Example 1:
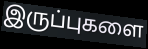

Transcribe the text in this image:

இருப்புகளை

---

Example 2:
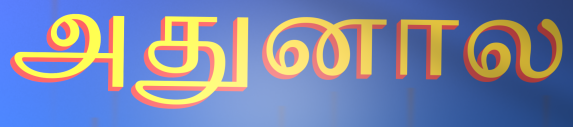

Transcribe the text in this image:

அதுனால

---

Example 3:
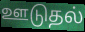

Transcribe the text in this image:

ஊடுதல்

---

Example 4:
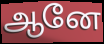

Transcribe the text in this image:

ஆனே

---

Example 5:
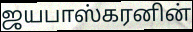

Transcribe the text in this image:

ஜயபாஸ்கரனின்